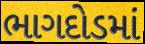
ભાગદોડમાં